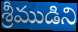
శ్రీముడిని